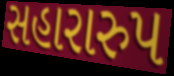
સહારારુપ